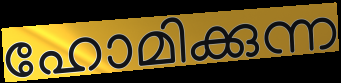
ഹോമിക്കുന്ന